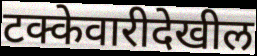
टक्केवारीदेखील